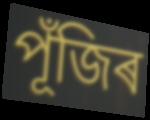
পূঁজিৰ